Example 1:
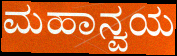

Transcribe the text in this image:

ಮಹಾನ್ವಯ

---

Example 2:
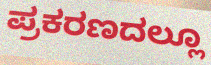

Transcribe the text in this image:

ಪ್ರಕರಣದಲ್ಲೂ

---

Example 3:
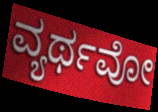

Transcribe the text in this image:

ವ್ಯರ್ಥವೋ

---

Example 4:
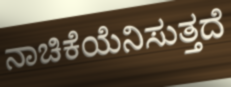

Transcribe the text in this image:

ನಾಚಿಕೆಯೆನಿಸುತ್ತದೆ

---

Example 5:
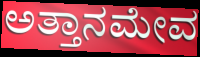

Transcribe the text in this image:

ಅತ್ತಾನಮೇವ